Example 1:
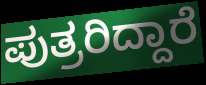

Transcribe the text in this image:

ಪುತ್ರರಿದ್ದಾರೆ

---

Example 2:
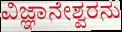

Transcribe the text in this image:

ವಿಜ್ಞಾನೇಶ್ವರನು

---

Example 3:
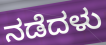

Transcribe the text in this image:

ನಡೆದಳು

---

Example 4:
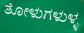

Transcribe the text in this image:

ತೋಳುಗಳುಳ್ಳ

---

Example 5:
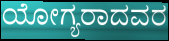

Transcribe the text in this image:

ಯೋಗ್ಯರಾದವರ